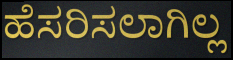
ಹೆಸರಿಸಲಾಗಿಲ್ಲ